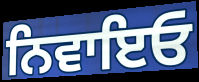
ਨਿਵਾਇਓ